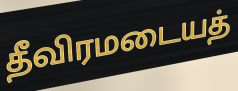
தீவிரமடையத்